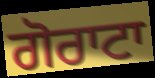
ਗੋਰਾਟਾ